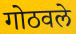
गोठवले